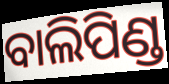
ବାଲିପିଣ୍ଡ